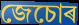
জেচোৰ